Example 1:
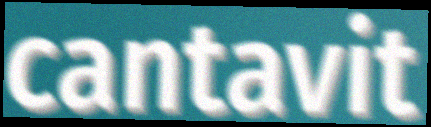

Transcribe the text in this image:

cantavit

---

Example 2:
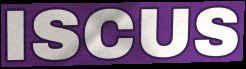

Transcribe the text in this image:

ISCUS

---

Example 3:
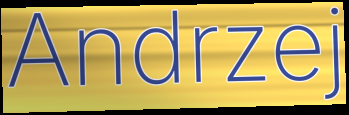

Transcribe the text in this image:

Andrzej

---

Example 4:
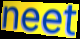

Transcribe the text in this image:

neet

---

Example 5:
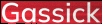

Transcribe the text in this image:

Gassick